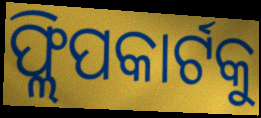
ଫ୍ଲିପକାର୍ଟକୁ